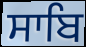
ਸਾਬਿ